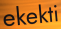
ekekti